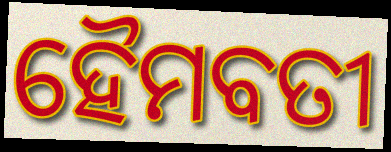
ହୈମବତୀ